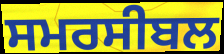
ਸਮਰਸੀਬਲ